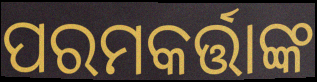
ପରମକର୍ତ୍ତାଙ୍କ